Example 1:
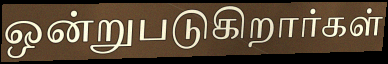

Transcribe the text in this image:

ஒன்றுபடுகிறார்கள்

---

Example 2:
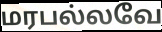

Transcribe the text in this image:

மரபல்லவே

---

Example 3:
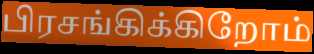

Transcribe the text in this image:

பிரசங்கிக்கிறோம்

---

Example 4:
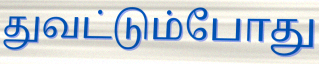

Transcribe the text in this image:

துவட்டும்போது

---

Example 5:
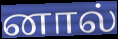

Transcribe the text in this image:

னால்